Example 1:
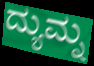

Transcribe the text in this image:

ದ್ಯುಮ್ನ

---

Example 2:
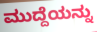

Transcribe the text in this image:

ಮುದ್ದೆಯನ್ನು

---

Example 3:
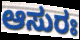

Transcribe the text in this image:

ಆಸುರಃ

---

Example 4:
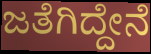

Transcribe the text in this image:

ಜತೆಗಿದ್ದೇನೆ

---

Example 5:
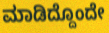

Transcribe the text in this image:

ಮಾಡಿದ್ದೊಂದೇ